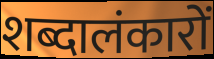
शब्दालंकारों